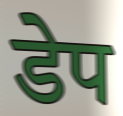
डेप